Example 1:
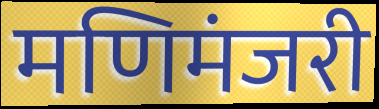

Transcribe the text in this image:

मणिमंजरी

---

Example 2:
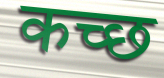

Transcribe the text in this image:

कच्‍छ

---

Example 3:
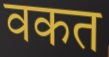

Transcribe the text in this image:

वकत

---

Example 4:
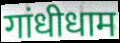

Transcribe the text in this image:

गांधीधाम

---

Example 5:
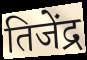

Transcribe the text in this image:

तिजेंद्र